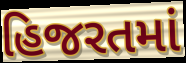
હિજરતમાં